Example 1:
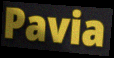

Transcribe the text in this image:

Pavia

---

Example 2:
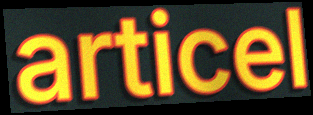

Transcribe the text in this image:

articel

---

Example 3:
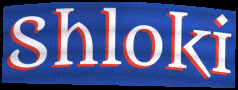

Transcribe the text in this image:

Shloki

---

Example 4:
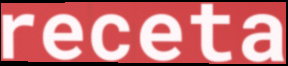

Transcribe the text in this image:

receta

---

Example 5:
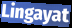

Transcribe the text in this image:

Lingayat